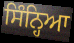
ਸਿੰਨ੍ਹਿਆ